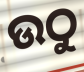
ଉଠୁ